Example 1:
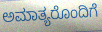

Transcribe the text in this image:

ಅಮಾತ್ಯರೊಂದಿಗೆ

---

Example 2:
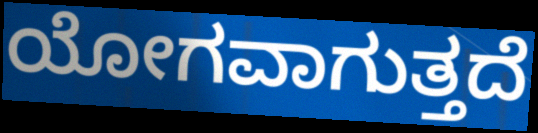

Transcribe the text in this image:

ಯೋಗವಾಗುತ್ತದೆ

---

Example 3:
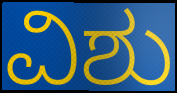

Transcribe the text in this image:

ವಿಶು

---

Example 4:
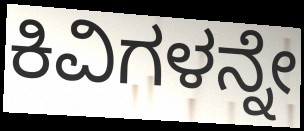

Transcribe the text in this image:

ಕಿವಿಗಳನ್ನೇ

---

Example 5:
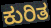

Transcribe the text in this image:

ಕುರಿತ